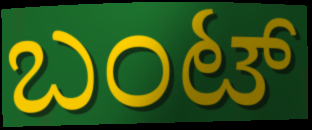
ಬಂಟ್